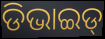
ଡିଭାଇଡ୍